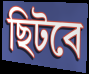
ছিটবে